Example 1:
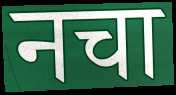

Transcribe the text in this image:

नचा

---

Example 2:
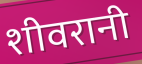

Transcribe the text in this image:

शीवरानी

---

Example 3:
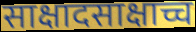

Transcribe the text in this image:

साक्षादसाक्षाच्च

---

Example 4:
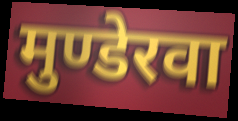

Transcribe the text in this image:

मुण्डेरवा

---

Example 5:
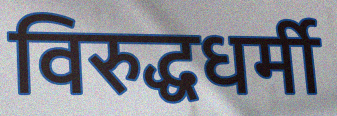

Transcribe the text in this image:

विरुद्धधर्मी